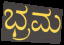
ಭ್ರಮ